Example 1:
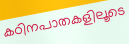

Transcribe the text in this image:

കഠിനപാതകളിലൂടെ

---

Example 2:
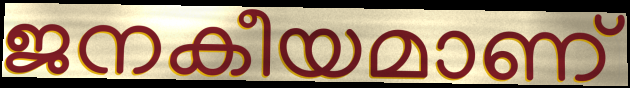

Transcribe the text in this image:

ജനകീയമാണ്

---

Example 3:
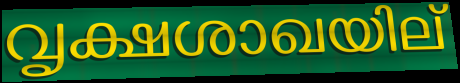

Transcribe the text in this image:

വൃക്ഷശാഖയില്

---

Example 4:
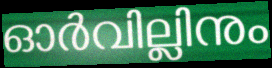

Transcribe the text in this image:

ഓർവില്ലിനും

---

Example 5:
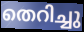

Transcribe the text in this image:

തെറിച്ചു